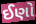
ઈણો